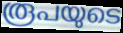
രൂപയുടെ